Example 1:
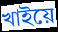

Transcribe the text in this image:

খাইয়ে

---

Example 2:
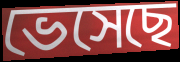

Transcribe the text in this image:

ভেসেছে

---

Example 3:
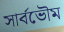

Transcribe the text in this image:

সার্বভৌম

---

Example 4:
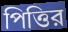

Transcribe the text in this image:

পিত্তির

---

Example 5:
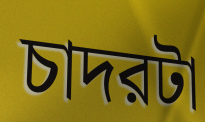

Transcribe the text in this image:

চাদরটা